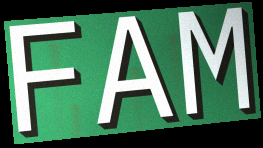
FAM